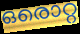
ഒരൊറ്റ